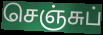
செஞ்சுப்